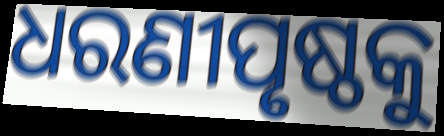
ଧରଣୀପୃଷ୍ଠକୁ